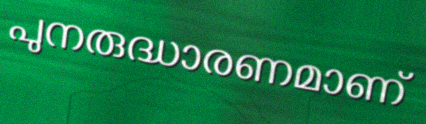
പുനരുദ്ധാരണമാണ്